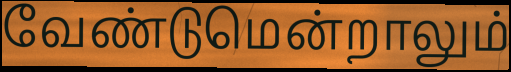
வேண்டுமென்றாலும்